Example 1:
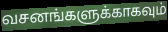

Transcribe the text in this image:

வசனங்களுக்காகவும்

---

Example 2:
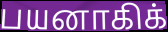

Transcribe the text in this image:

பயனாகிக்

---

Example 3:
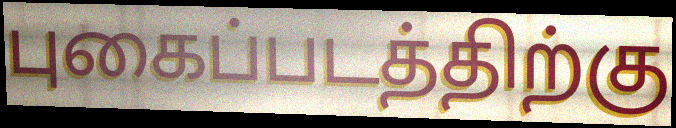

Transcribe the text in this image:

புகைப்படத்திற்கு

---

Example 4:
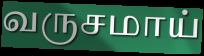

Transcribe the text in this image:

வருசமாய்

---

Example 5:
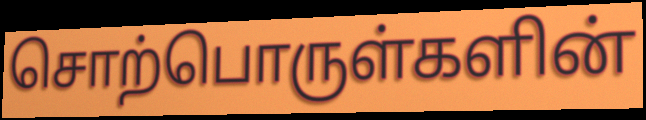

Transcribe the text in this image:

சொற்பொருள்களின்